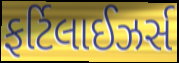
ફર્ટિલાઈઝર્સ